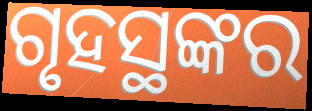
ଗୃହସ୍ଥଙ୍କର